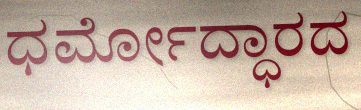
ಧರ್ಮೋದ್ಧಾರದ